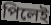
পিলেই